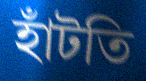
হাঁটতি